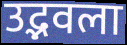
उद्भवला